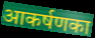
आकर्षणका